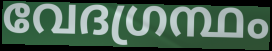
വേദഗ്രന്ഥം